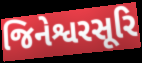
જિનેશ્વરસૂરિ